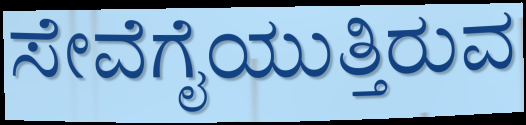
ಸೇವೆಗೈಯುತ್ತಿರುವ